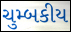
ચુમ્બકીય